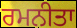
ਰਮਨੀਤਾ